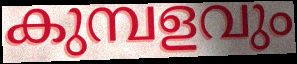
കുമ്പളവും